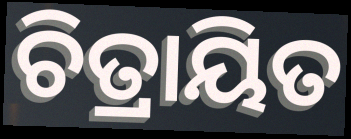
ଚିତ୍ରାୟିତ